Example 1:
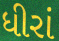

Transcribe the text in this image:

ધીરાં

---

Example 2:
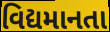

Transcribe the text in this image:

વિદ્યમાનતા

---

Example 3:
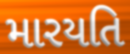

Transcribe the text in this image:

મારયતિ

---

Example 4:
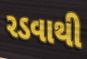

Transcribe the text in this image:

રડવાથી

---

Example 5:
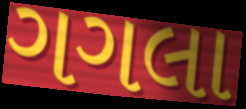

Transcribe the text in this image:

ગગલા